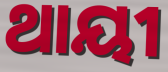
ଥାୟୀ